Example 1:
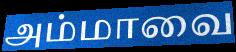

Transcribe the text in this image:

அம்மாவை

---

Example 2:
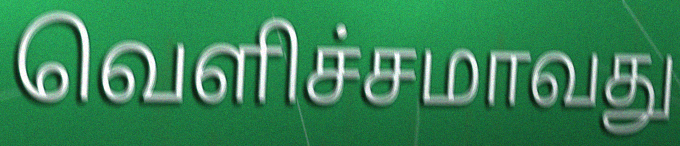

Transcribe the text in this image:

வெளிச்சமாவது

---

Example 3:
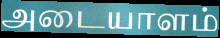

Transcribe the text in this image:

அடையாளம்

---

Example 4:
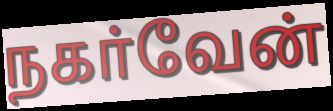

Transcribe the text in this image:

நகர்வேன்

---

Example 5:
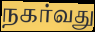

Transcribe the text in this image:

நகர்வது